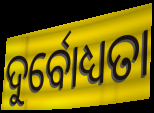
ଦୁର୍ବୋଧ୍ୟତା